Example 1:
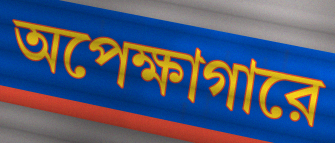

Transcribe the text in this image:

অপেক্ষাগারে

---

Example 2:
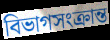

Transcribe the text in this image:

বিভাগসংক্রান্ত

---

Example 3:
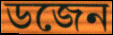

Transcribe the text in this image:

ডজেন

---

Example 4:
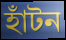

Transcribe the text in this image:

হাঁটন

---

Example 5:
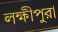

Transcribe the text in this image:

লক্ষীপুরা